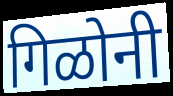
गिळोनी